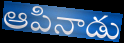
ఆపినాడు